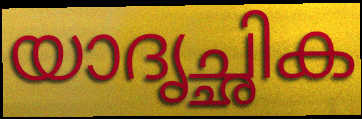
യാദൃച്ഛിക